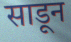
साडून